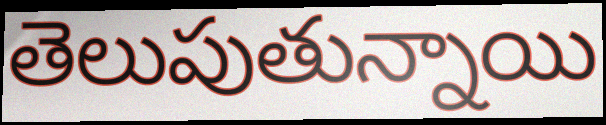
తెలుపుతున్నాయి